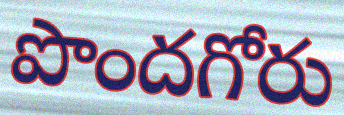
పొందగోరు